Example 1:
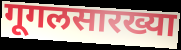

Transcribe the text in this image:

गूगलसारख्या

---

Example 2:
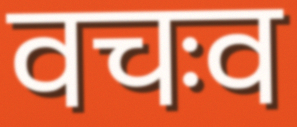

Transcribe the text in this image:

वचःव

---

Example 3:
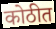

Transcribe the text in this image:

कोठीत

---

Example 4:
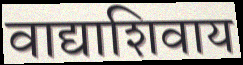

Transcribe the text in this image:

वाद्याशिवाय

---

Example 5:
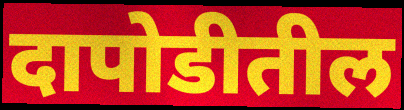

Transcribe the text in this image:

दापोडीतील